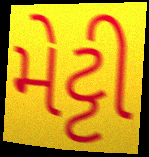
મેટ્ટી